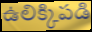
ఉలిక్కిపడి